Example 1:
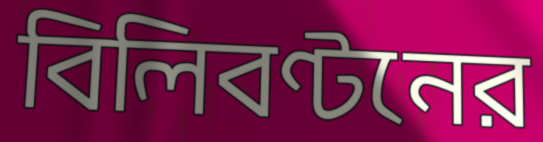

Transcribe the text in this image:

বিলিবণ্টনের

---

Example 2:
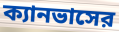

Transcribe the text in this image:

ক্যানভাসের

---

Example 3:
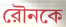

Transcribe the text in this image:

রৌনকে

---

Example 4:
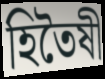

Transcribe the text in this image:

হিতৈষী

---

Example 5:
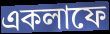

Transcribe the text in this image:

একলাফে